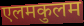
एलमकुलम